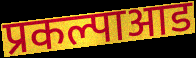
प्रकल्पाआड